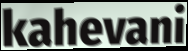
kahevani